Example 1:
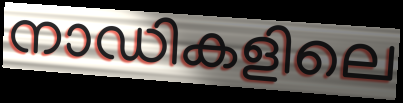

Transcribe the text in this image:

നാഡികളിലെ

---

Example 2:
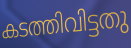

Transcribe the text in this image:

കടത്തിവിട്ടതു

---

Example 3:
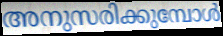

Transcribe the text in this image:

അനുസരിക്കുമ്പോൾ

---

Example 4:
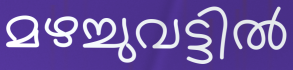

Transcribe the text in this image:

മഴച്ചുവട്ടിൽ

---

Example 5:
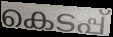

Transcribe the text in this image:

കെടപ്പ്